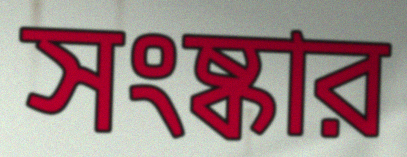
সংষ্কার